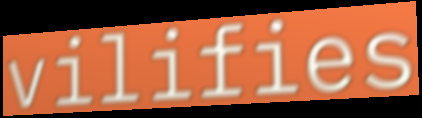
vilifies